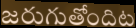
జరుగుతోందిట